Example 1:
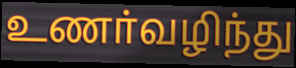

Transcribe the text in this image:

உணர்வழிந்து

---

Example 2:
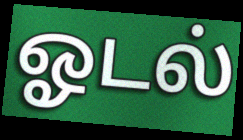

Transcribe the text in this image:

ஓடல்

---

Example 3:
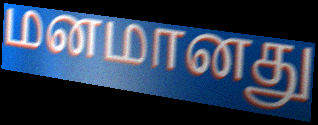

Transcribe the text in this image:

மனமானது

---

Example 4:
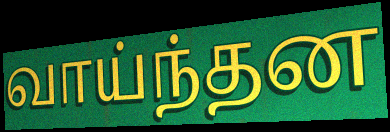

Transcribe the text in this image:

வாய்ந்தன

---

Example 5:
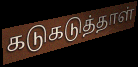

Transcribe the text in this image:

கடுகடுத்தாள்